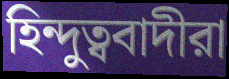
হিন্দুত্ববাদীরা